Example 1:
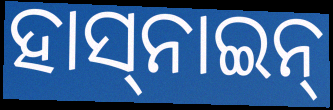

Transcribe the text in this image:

ହାସ୍‌ନାଇନ୍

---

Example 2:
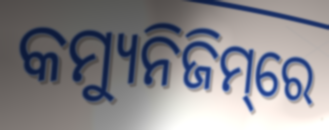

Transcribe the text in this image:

କମ୍ୟୁନିଜିମ୍‌ରେ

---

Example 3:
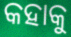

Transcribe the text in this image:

କହାକୁ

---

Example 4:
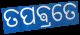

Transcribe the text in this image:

ତପଵ୍ରତେ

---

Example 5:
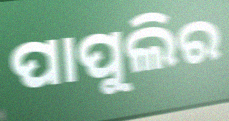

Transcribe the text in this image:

ପାପୁଲିର